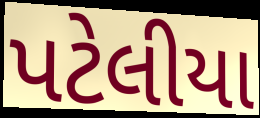
પટેલીયા